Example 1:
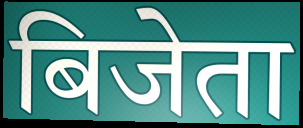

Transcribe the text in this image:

बिजेता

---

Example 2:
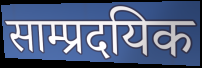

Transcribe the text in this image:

साम्प्रदयिक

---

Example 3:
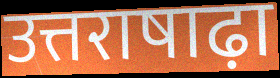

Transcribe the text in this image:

उत्तराषाढ़ा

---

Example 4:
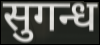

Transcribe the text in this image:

सुगन्ध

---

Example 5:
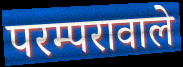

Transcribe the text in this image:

परम्परावाले